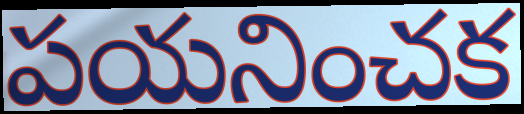
పయనించక